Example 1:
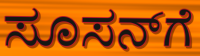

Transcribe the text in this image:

ಸೂಸನ್‌ಗೆ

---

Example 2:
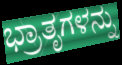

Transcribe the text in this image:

ಭ್ರಾತೃಗಳನ್ನು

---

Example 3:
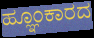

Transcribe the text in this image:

ಹ್ಞೂಂಕಾರದ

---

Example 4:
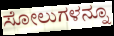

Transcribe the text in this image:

ಸೋಲುಗಳನ್ನೂ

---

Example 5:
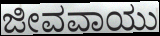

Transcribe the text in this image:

ಜೀವವಾಯು